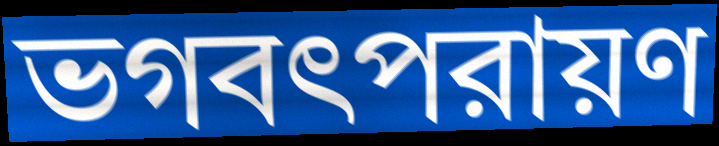
ভগবৎপরায়ণ